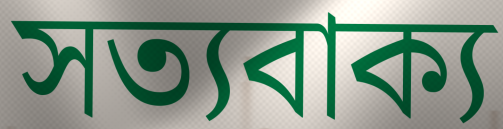
সত্যবাক্য